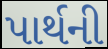
પાર્થની